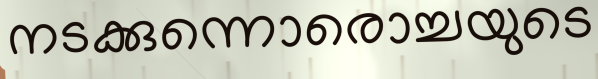
നടക്കുന്നൊരൊച്ചയുടെ